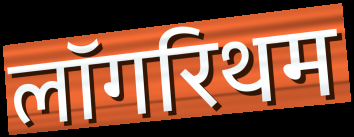
लॉगरिथम